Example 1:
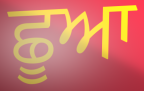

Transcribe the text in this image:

ਛੂਆ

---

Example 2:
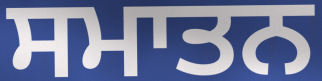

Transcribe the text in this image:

ਸਮਾਤਨ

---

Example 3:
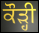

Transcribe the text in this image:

ਕੌੜ੍ਹੀ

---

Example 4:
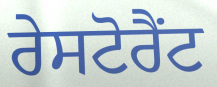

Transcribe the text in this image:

ਰੇਸਟੋਰੈਂਟ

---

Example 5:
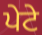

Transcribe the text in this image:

ਪੇਟੇ